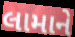
લામાને